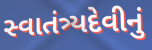
સ્વાતંત્ર્યદેવીનું